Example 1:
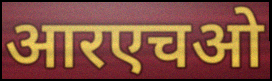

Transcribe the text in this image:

आरएचओ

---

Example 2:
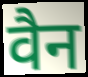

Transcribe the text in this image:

वैन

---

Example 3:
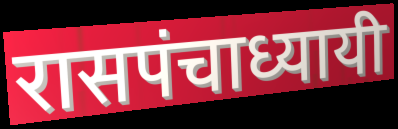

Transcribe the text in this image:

रासपंचाध्यायी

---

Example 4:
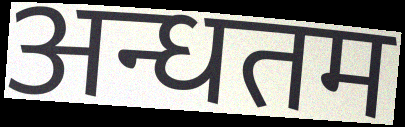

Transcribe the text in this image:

अन्धतम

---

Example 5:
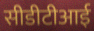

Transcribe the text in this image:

सीडीटीआई